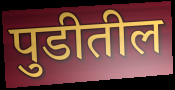
पुडीतील